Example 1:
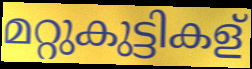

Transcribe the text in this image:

മറ്റുകുട്ടികള്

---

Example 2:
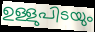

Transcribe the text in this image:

ഉള്ളുപിടയും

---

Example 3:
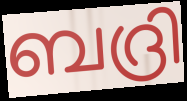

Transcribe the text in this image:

ബദ്രി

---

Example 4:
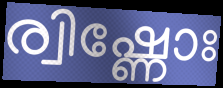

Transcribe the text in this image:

ര്വിഷ്ണോഃ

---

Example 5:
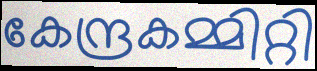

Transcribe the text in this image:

കേന്ദ്രകമ്മിറ്റി